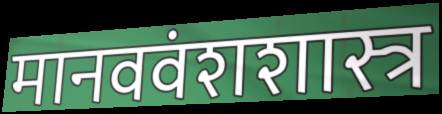
मानववंशशास्त्र